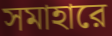
সমাহারে